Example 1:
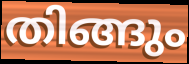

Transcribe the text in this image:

തിങ്ങും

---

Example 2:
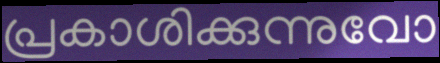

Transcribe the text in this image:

പ്രകാശിക്കുന്നുവോ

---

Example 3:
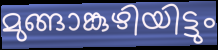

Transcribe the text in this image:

മുങ്ങാങ്കുഴിയിട്ടും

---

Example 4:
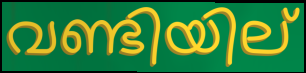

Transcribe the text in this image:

വണ്ടിയില്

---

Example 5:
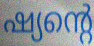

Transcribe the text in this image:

ഷ്യന്റെ